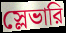
স্লেভারি